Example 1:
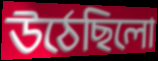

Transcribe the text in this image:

উঠেছিলো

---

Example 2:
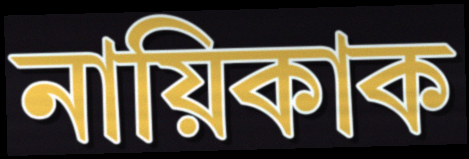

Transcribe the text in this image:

নায়িকাক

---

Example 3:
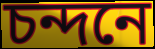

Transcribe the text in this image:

চন্দনে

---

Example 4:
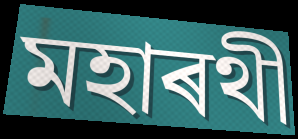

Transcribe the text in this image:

মহাৰথী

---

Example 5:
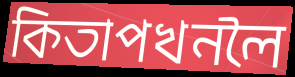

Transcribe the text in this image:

কিতাপখনলৈ